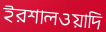
ইরশালওয়াদি